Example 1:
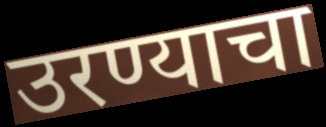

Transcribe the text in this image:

उरण्याचा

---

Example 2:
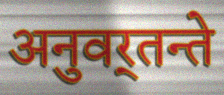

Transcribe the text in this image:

अनुवर्तन्ते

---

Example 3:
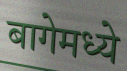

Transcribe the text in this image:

बागेमध्ये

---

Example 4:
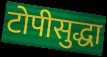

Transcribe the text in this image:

टोपीसुद्धा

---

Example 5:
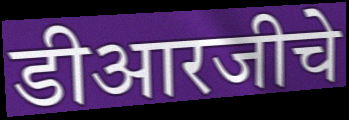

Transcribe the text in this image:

डीआरजीचे